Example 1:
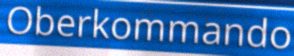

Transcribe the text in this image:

Oberkommando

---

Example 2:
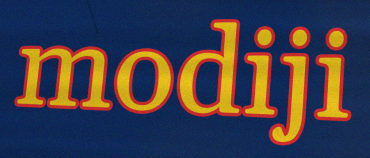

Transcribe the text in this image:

modiji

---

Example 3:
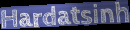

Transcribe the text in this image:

Hardatsinh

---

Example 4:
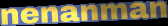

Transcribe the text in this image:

nenanman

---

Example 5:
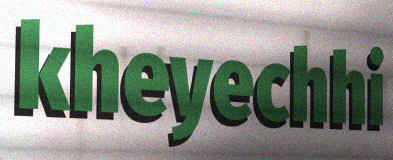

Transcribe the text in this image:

kheyechhi